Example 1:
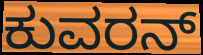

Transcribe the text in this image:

ಕುವರನ್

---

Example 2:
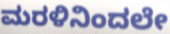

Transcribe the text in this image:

ಮರಳಿನಿಂದಲೇ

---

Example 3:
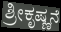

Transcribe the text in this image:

ಶ್ರೀಕೃಷ್ಣನೆ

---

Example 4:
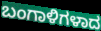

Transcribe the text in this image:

ಬಂಗಾಳಿಗಳಾದ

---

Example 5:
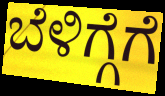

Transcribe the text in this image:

ಬೆಳಿಗ್ಗೆಗೆ